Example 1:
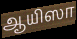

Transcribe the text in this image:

ஆயிஸா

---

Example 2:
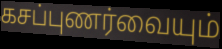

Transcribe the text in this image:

கசப்புணர்வையும்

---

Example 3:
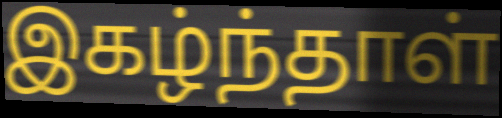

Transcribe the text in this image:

இகழ்ந்தாள்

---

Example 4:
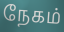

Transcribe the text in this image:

நேகம்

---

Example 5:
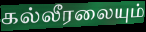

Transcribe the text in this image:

கல்லீரலையும்